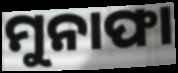
ମୁନାଫା